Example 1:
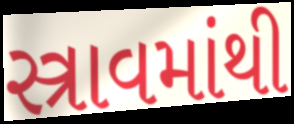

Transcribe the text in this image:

સ્ત્રાવમાંથી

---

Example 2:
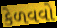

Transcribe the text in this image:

કેળવવો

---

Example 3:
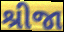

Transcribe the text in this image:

શ્રીજા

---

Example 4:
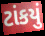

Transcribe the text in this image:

ટાંકયું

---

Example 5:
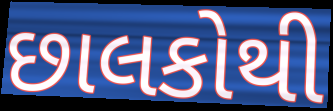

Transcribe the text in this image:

છાલકોથી